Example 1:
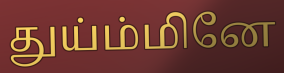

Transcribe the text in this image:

துய்ம்மினே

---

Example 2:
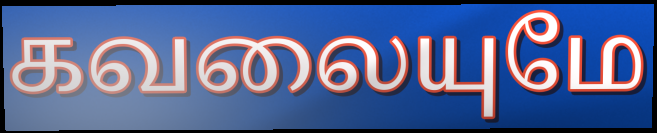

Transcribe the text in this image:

கவலையுமே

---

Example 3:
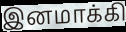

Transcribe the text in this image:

இனமாக்கி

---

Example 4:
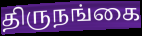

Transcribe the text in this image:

திருநங்கை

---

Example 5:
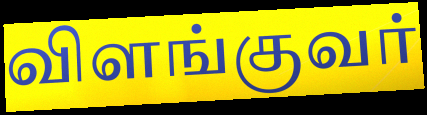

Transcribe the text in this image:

விளங்குவர்